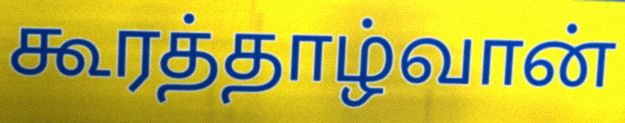
கூரத்தாழ்வான்